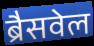
ब्रैसवेल